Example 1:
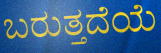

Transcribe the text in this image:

ಬರುತ್ತದೆಯೆ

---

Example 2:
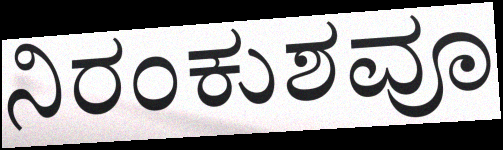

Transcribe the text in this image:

ನಿರಂಕುಶವೂ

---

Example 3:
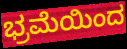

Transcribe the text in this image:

ಭ್ರಮೆಯಿಂದ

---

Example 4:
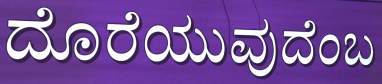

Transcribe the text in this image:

ದೊರೆಯುವುದೆಂಬ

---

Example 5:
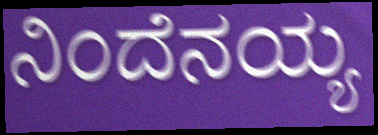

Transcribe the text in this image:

ನಿಂದೆನಯ್ಯ